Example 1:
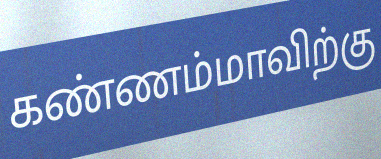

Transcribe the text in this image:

கண்ணம்மாவிற்கு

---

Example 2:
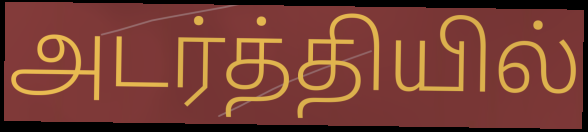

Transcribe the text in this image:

அடர்த்தியில்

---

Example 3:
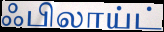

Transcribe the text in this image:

ஃபிலாய்ட்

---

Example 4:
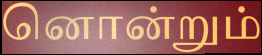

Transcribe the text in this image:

னொன்றும்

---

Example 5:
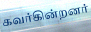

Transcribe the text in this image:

கவர்கின்றனர்